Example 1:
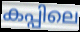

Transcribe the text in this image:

കപ്പിലെ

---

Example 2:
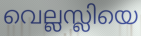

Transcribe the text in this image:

വെല്ലസ്ലിയെ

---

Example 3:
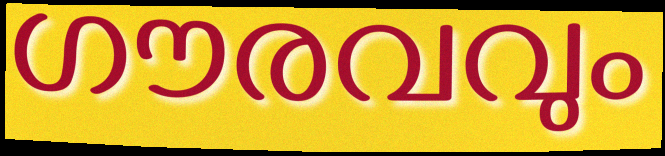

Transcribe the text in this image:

ഗൗരവവും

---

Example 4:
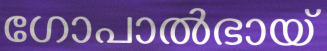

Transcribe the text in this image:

ഗോപാൽഭായ്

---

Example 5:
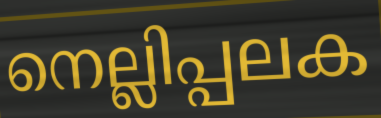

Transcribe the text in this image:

നെല്ലിപ്പലക